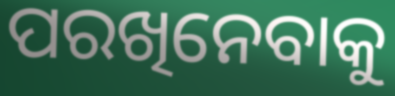
ପରଖିନେବାକୁ